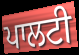
ਪਾਲਟੀ